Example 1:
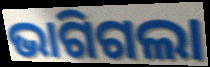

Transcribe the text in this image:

ଭାଗିଗଲା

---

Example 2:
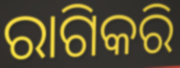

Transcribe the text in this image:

ରାଗିକରି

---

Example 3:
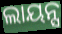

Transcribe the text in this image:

ଲାୟନ୍ସ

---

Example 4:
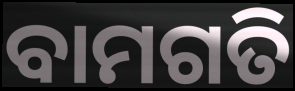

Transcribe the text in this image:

ବାମଗତି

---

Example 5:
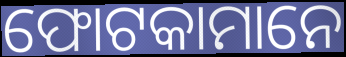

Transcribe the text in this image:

ଫୋଟକାମାନେ